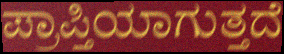
ಪ್ರಾಪ್ತಿಯಾಗುತ್ತದೆ